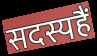
सदस्यहैं